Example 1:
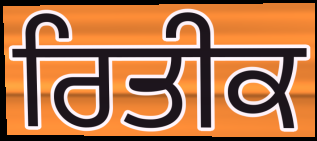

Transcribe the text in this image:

ਰਿਤੀਕ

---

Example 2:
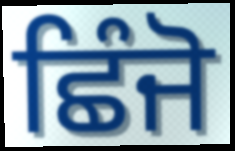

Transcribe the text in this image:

ਛਿੰਜੋ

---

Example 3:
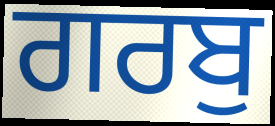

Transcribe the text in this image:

ਗਰਬੁ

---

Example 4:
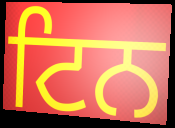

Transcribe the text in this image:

ਟਿਨ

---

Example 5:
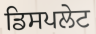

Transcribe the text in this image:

ਡਿਸਪਲੇਟ